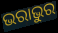
ଭରାଭୁର